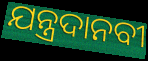
ଯନ୍ତ୍ରଦାନବୀ